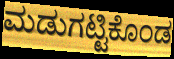
ಮಡುಗಟ್ಟಿಕೊಂಡ